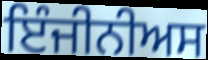
ਇੰਜੀਨੀਅਸ